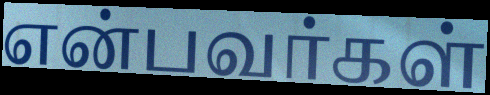
என்பவர்கள்